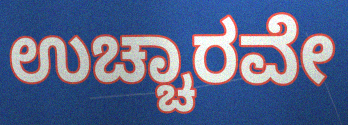
ಉಚ್ಚಾರವೇ